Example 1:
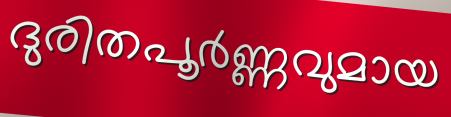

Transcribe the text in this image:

ദുരിതപൂർണ്ണവുമായ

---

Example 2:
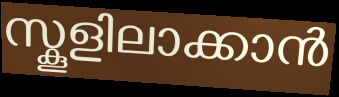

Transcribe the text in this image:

സ്കൂളിലാക്കാൻ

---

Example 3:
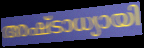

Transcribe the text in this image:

അഷ്ടാധ്യായി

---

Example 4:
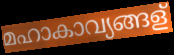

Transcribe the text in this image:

മഹാകാവ്യങ്ങള്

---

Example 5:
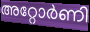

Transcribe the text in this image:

അറ്റോർണി